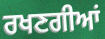
ਰਖਣਗੀਆਂ